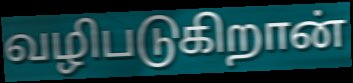
வழிபடுகிறான்